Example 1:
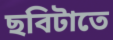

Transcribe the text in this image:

ছবিটাতে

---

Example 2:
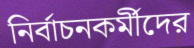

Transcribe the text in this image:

নির্বাচনকর্মীদের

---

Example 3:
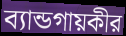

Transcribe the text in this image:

ব্যান্ডগায়কীর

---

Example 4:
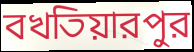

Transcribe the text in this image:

বখতিয়ারপুর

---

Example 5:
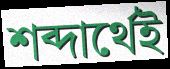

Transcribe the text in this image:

শব্দার্থেই